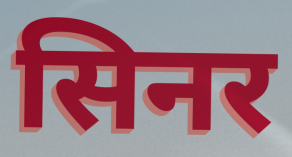
सिनर